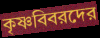
কৃষ্ণবিবরদের